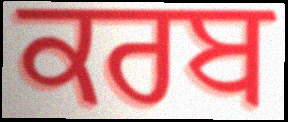
ਕਰਬ